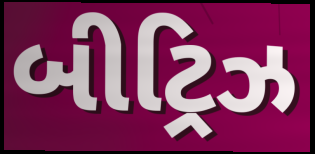
બીટ્રિઝ